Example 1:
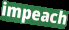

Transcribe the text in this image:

impeach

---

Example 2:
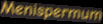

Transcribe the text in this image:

Menispermum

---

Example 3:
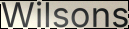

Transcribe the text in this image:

Wilsons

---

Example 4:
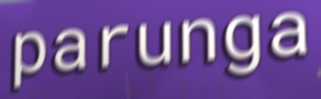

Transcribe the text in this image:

parunga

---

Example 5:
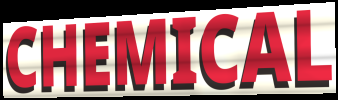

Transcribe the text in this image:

CHEMICAL